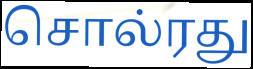
சொல்ரது